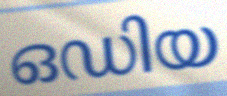
ഒഡിയ